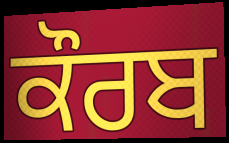
ਕੌਰਬ